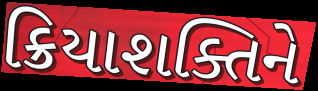
ક્રિયાશક્તિને